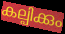
കല്പിക്കും